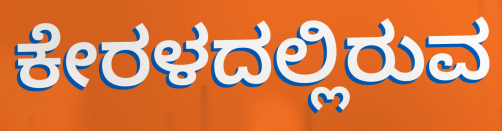
ಕೇರಳದಲ್ಲಿರುವ